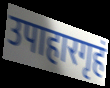
उपाहारगृहं